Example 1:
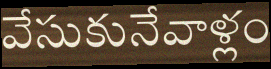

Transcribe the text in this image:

వేసుకునేవాళ్లం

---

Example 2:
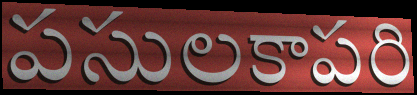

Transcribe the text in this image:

పసులకాపరి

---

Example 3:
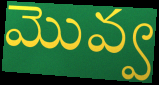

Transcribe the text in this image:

మొవ్వ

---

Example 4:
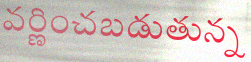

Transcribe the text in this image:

వర్ణించబడుతున్న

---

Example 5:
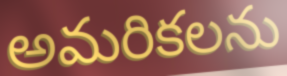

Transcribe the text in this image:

అమరికలను